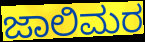
ಜಾಲಿಮರ